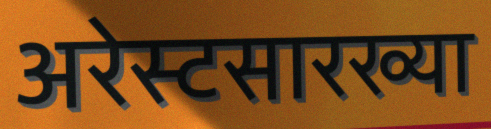
अरेस्टसारख्या